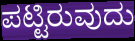
ಪಟ್ಟಿರುವುದು